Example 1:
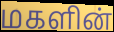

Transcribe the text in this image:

மகளின்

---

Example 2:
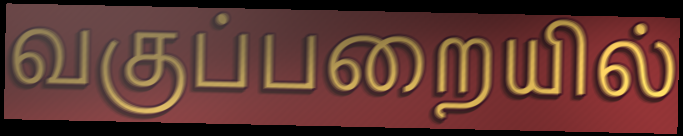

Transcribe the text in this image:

வகுப்பறையில்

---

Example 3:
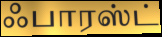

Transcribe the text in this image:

ஃபாரஸ்ட்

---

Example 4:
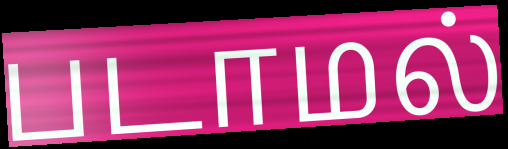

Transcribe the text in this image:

படாமல்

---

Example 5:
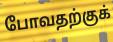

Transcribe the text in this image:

போவதற்குக்